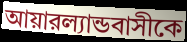
আয়ারল্যান্ডবাসীকে